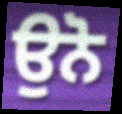
ਉਨੋ